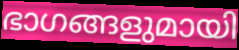
ഭാഗങ്ങളുമായി